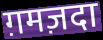
ग़मज़दा